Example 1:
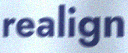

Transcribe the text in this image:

realign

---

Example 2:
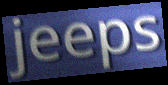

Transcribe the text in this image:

jeeps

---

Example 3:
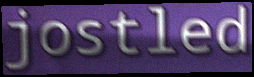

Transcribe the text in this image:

jostled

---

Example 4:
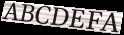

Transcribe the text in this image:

ABCDEFA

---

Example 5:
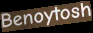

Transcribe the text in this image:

Benoytosh